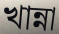
খান্না